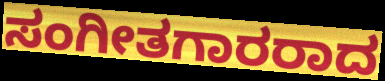
ಸಂಗೀತಗಾರರಾದ